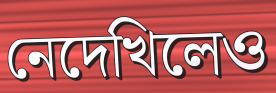
নেদেখিলেও